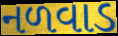
નળવાડ